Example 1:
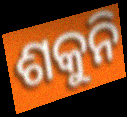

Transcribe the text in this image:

ଶକୁନି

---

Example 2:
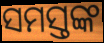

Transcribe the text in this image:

ସମସ୍ତଙ୍କ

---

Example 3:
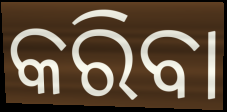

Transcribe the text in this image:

କରିବା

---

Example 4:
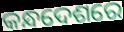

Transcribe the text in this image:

କନ୍ଧଦେଶରେ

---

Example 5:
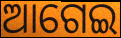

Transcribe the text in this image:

ଆଗେଇ